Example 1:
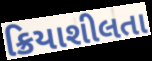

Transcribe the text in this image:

ક્રિયાશીલતા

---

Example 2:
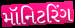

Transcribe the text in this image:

મૉનિટરિંગ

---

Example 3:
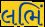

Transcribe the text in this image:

લભિં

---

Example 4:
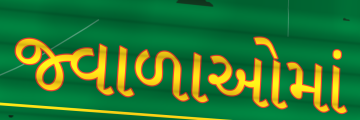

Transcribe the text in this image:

જ્વાળાઓમાં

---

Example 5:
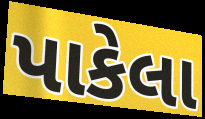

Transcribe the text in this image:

પાકેલા